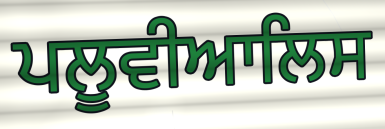
ਪਲੂਵੀਆਲਿਸ